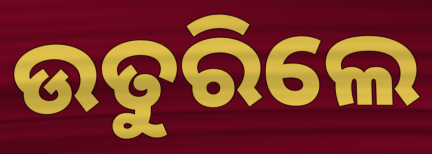
ଉତୁରିଲେ